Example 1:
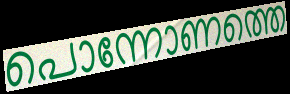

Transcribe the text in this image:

പൊന്നോണത്തെ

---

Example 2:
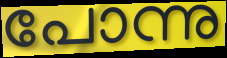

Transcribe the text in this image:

പോന്നു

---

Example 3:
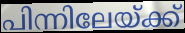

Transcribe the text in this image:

പിന്നിലേയ്ക്ക്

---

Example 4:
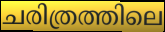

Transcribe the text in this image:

ചരിത്രത്തിലെ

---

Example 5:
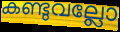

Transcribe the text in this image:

കണ്ടുവല്ലോ